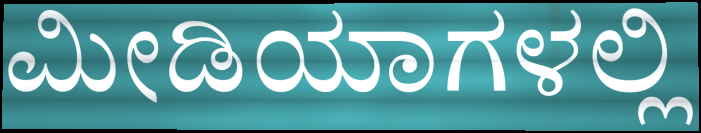
ಮೀಡಿಯಾಗಳಲ್ಲಿ